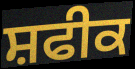
ਸ਼ਫੀਕ